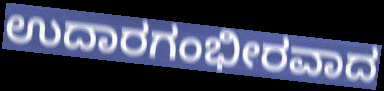
ಉದಾರಗಂಭೀರವಾದ